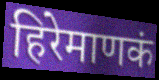
हिरेमाणकं